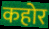
कहोर